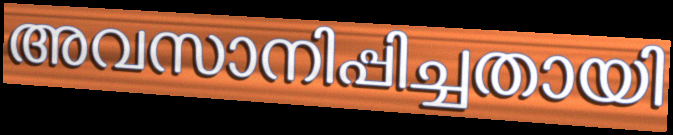
അവസാനിപ്പിച്ചതായി